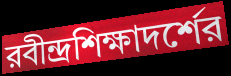
রবীন্দ্রশিক্ষাদর্শের